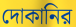
দোকানির